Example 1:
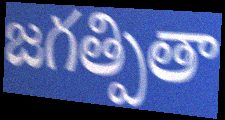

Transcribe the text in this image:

జగత్పితా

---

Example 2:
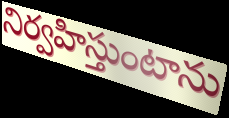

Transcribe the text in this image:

నిర్వహిస్తుంటాను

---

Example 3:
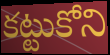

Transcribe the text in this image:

కట్టుకోని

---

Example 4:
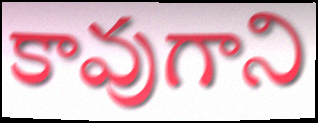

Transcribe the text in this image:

కావుగాని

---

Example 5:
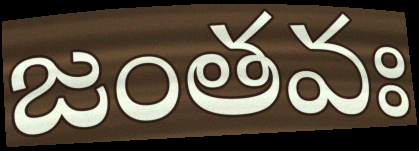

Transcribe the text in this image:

జంతవః